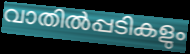
വാതിൽപ്പടികളും